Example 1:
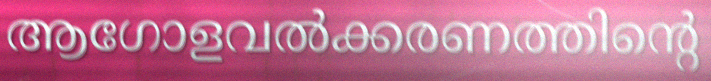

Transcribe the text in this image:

ആഗോളവൽക്കരണത്തിന്റെ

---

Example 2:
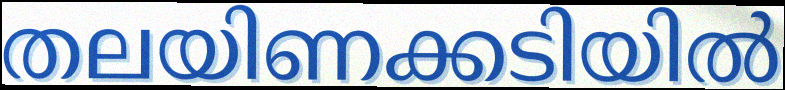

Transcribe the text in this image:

തലയിണക്കടിയിൽ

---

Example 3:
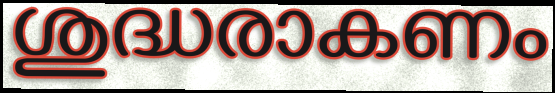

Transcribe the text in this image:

ശുദ്ധരാകണം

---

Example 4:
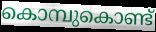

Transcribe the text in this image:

കൊമ്പുകൊണ്ട്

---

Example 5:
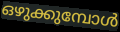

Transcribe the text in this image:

ഒഴുക്കുമ്പോൾ